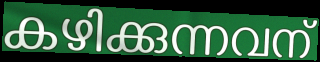
കഴിക്കുന്നവന്